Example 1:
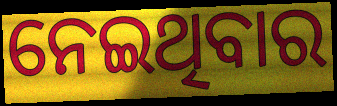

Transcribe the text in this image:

ନେଇଥିବାର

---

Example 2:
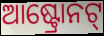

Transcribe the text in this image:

ଆଷ୍ଟ୍ରୋନଟ୍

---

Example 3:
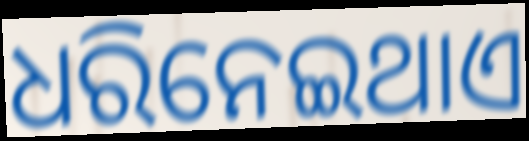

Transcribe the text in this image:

ଧରିନେଇଥାଏ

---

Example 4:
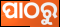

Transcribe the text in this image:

ପାଠରୁ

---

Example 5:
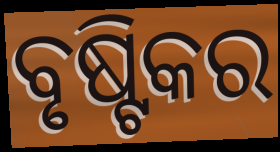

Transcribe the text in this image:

ବୃଷ୍ଟିକର